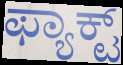
ಫ್ಯಾಕ್ಟ್